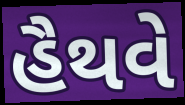
હૈથવે